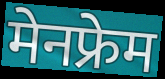
मेनफ्रेम